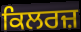
ਕਿਲਰਜ਼